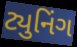
ટ્યુનિંગ